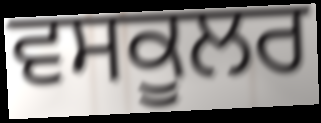
ਵਸਕੂਲਰ